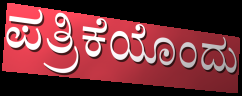
ಪತ್ರಿಕೆಯೊಂದು